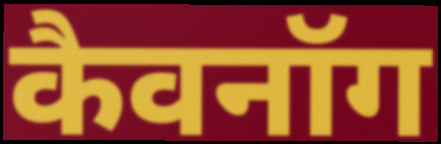
कैवनॉग